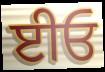
ਈਓ